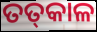
ତତ୍‌କାଳ